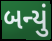
બન્યું